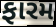
ફારમ